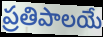
ప్రతిపాలయే